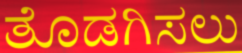
ತೊಡಗಿಸಲು